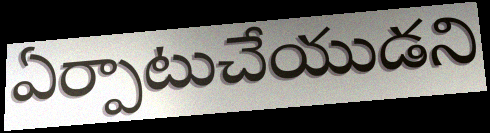
ఏర్పాటుచేయుడని